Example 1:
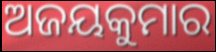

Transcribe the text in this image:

ଅଜୟକୁମାର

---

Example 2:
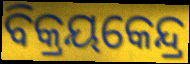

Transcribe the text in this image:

ବିକ୍ରୟକେନ୍ଦ୍ର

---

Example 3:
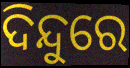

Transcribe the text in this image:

ଦିନ୍ଦୁରେ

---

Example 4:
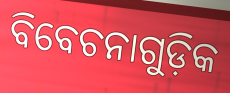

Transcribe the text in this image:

ବିବେଚନାଗୁଡ଼ିକ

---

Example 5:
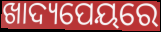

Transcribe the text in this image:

ଖାଦ୍ୟପେୟରେ